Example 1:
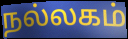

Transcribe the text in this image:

நல்லகம்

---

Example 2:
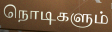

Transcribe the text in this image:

நொடிகளும்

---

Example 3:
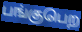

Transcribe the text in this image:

பங்குபெற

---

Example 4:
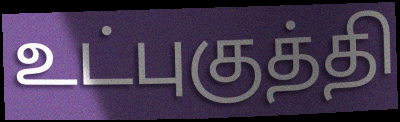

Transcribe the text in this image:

உட்புகுத்தி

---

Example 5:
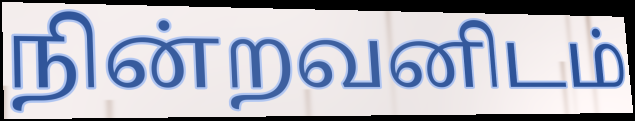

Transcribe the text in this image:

நின்றவனிடம்